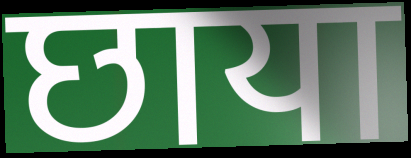
छाया